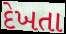
દેખતા